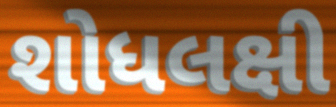
શોધલક્ષી